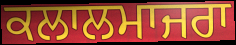
ਕਲਾਲਮਾਜਰਾ